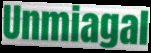
Unmiagal